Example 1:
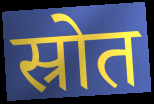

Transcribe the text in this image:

स्रोत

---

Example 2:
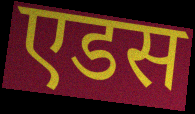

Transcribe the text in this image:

एडस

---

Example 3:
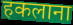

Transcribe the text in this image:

हकलाना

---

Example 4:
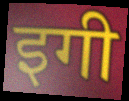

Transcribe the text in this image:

इगी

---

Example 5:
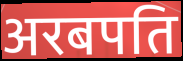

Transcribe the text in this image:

अरबपति